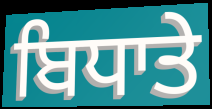
ਬਿਧਾਤੇ